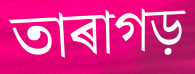
তাৰাগড়